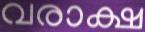
വരാക്ഷ